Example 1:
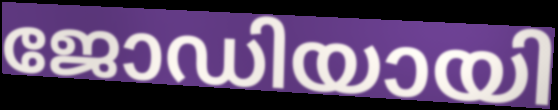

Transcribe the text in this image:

ജോഡിയായി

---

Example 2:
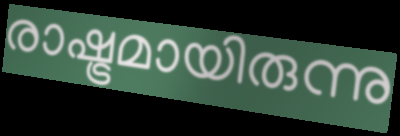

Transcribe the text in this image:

രാഷ്ട്രമായിരുന്നു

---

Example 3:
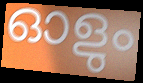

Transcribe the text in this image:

ഓളും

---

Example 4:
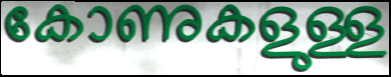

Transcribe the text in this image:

കോണുകളുള്ള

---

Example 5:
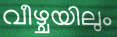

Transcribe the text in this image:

വീഴ്ചയിലും